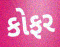
કોફર